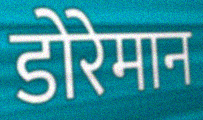
डोरेमान